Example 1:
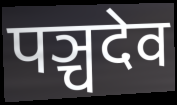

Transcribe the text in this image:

पञ्चदेव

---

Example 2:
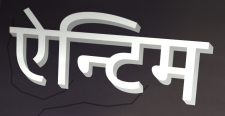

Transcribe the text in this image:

ऐन्टिम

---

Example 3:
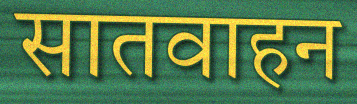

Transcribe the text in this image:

सातवाहन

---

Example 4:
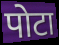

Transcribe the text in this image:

पोटा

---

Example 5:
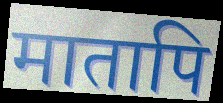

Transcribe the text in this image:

मातापि